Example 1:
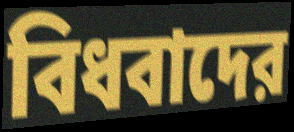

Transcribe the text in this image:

বিধবাদের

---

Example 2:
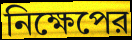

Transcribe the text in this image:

নিক্ষেপের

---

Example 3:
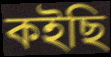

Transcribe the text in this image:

কইছি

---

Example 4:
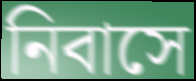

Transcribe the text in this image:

নিবাসে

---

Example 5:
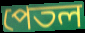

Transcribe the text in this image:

পেতল